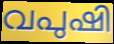
വപുഷി